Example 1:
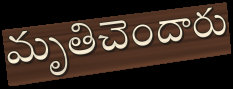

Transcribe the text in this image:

మృతిచెందారు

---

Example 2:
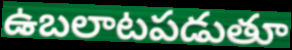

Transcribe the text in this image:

ఉబలాటపడుతూ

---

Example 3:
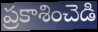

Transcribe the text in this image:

ప్రకాశించెడి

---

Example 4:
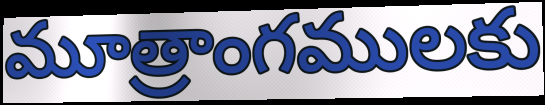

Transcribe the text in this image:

మూత్రాంగములకు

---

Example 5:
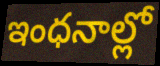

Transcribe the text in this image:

ఇంధనాల్లో